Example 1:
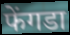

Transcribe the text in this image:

फेंगडा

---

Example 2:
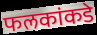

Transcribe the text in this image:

फलकांकडे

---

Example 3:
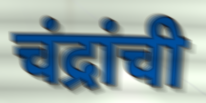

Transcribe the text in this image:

चंद्रांची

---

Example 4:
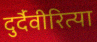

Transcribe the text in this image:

दुर्दैवीरित्या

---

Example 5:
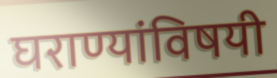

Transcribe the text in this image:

घराण्यांविषयी